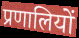
प्रणालियों